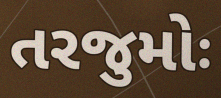
તરજુમોઃ